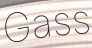
Gass